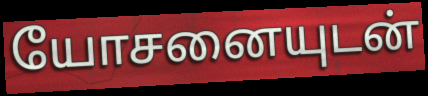
யோசனையுடன்